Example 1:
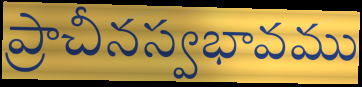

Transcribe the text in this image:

ప్రాచీనస్వభావము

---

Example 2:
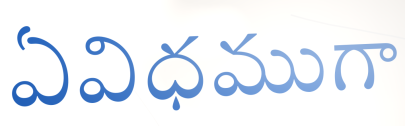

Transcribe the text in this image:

ఏవిధముగా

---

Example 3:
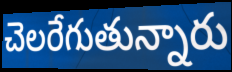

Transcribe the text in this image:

చెలరేగుతున్నారు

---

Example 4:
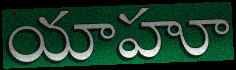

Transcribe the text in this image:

యాహూ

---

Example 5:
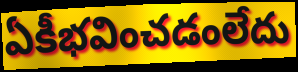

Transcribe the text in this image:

ఏకీభవించడంలేదు